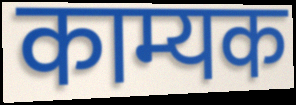
काम्यक